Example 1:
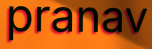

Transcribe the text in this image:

pranav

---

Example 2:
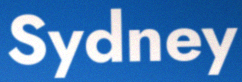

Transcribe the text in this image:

Sydney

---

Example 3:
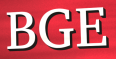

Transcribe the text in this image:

BGE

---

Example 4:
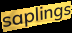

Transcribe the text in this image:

saplings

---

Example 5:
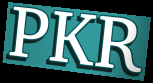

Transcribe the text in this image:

PKR